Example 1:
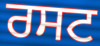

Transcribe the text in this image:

ਰਸਟ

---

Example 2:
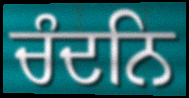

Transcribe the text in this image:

ਚੰਦਨਿ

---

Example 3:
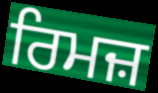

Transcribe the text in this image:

ਰਿਮਜ਼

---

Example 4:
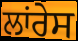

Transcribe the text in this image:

ਲਾਂਰੇਸ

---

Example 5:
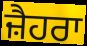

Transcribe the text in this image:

ਜ਼ੈਹਰਾ